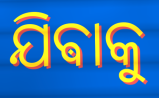
ଯିଵାକୁ